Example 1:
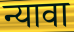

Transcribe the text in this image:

न्यावा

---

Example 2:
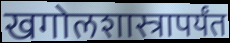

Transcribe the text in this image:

खगोलशास्त्रापर्यंत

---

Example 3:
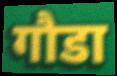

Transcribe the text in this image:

गौडा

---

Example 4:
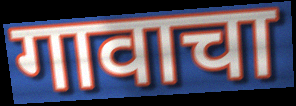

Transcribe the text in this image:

गावाचा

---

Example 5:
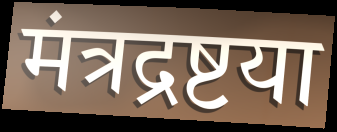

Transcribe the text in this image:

मंत्रद्रष्टया